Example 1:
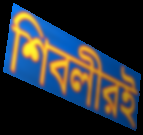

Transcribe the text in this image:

শিবলীরই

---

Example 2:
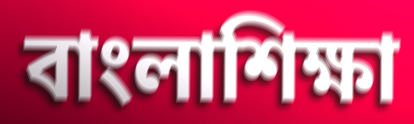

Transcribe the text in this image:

বাংলাশিক্ষা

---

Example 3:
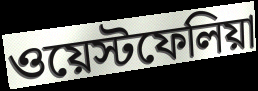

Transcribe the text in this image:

ওয়েস্টফেলিয়া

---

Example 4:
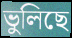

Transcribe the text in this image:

ভুলিছে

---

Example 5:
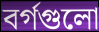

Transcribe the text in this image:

বর্গগুলো